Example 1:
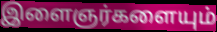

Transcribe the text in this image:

இளைஞர்களையும்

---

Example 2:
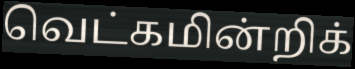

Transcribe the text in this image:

வெட்கமின்றிக்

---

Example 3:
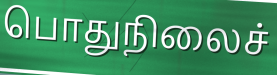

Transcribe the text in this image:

பொதுநிலைச்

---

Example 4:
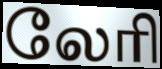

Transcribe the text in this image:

லேரி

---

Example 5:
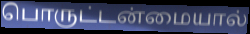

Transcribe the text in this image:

பொருட்டன்மையால்